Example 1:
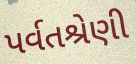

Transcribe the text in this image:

પર્વતશ્રેણી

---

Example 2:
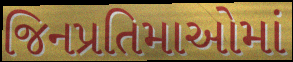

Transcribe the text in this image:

જિનપ્રતિમાઓમાં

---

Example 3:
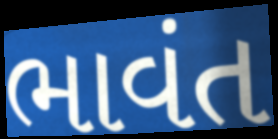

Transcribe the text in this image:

ભાવંત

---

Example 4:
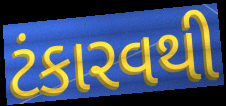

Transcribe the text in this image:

ટંકારવથી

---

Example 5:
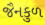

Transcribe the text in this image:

જૈનકુળ